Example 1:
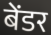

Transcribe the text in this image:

बेंडर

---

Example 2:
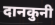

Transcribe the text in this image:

दानकुनी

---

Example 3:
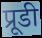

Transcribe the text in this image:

प्रूडी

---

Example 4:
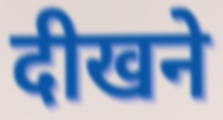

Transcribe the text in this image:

दीखने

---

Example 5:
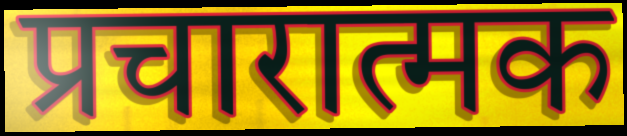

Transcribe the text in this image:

प्रचारात्मक